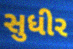
સુધીર